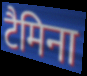
टैमिना